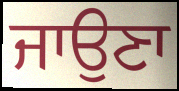
ਜਾਉਣਾ